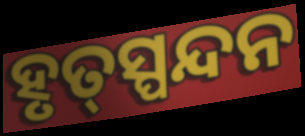
ହୃତ୍‌ସ୍ପନ୍ଦନ